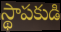
స్థాపకుడి